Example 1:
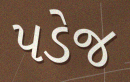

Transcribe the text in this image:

પડેજ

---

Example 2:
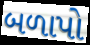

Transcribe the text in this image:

બળાપો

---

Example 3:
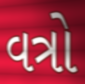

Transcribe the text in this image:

વત્રો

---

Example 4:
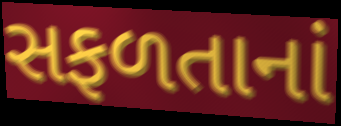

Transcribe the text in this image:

સફળતાનાં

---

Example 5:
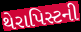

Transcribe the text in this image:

થેરાપિસ્ટની